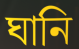
ঘানি